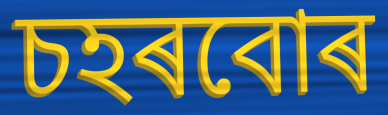
চহৰবোৰ